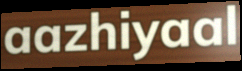
aazhiyaal